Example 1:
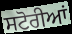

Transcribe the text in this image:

ਸਟੋਰੀਆਂ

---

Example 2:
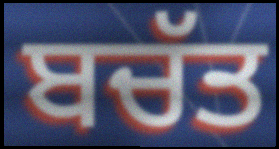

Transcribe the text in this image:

ਬਚੱਤ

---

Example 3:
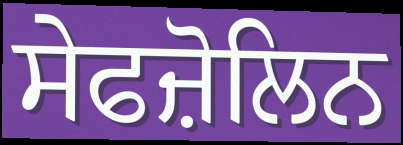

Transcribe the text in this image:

ਸੇਫਜ਼ੋਲਿਨ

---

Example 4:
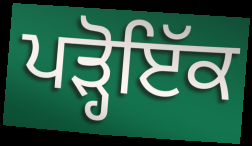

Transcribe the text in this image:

ਪੜ੍ਹੋਇੱਕ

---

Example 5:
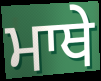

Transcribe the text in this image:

ਮਾਥੇ